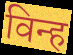
विन्ह